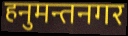
हनुमन्तनगर